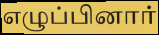
எழுப்பினார்